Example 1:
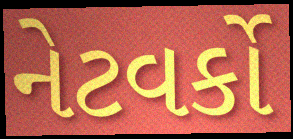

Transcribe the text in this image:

નેટવર્કો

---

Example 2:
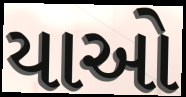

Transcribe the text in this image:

યાઓ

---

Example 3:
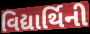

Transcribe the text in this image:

વિદ્યાર્થિની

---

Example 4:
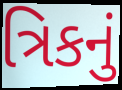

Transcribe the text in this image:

ત્રિકનું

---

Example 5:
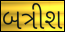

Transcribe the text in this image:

બત્રીશ